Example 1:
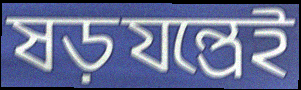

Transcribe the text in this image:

ষড়যন্ত্রেই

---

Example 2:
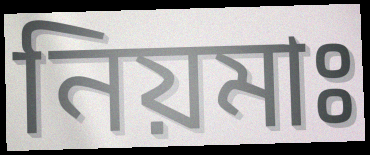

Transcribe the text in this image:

নিয়মাঃ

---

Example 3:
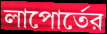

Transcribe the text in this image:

লাপোর্তের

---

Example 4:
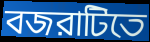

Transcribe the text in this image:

বজরাটিতে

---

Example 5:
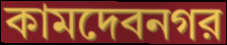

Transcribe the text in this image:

কামদেবনগর